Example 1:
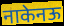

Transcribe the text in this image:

नाकेनऊ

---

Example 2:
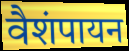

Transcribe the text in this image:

वैशंपायन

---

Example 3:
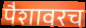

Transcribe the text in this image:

पैशावरच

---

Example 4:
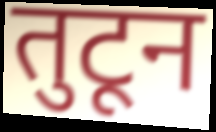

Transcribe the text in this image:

तुटून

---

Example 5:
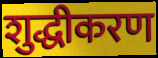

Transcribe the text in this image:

शुद्धीकरण